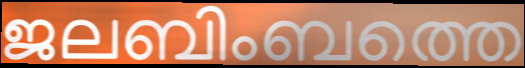
ജലബിംബത്തെ